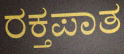
ರಕ್ತಪಾತ